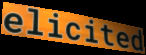
elicited